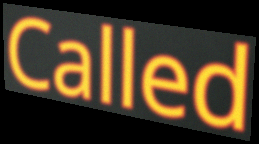
Called